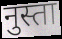
नुस्ता